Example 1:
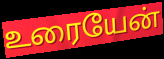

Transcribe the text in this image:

உரையேன்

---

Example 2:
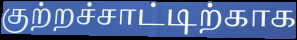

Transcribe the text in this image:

குற்றச்சாட்டிற்காக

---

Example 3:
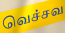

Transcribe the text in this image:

வெச்சவ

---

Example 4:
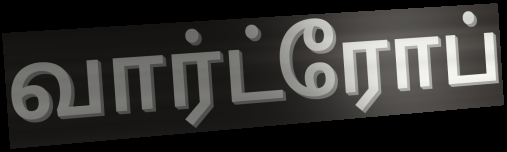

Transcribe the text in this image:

வார்ட்ரோப்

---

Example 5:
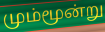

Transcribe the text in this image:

மும்மூன்று